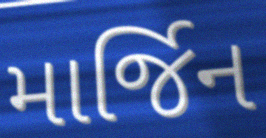
માર્જિન